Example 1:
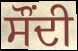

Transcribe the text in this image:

ਸੌਂਦੀ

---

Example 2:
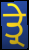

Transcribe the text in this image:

ਤ੍ਰੇ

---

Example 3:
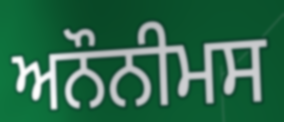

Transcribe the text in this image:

ਅਨੌਨੀਮਸ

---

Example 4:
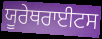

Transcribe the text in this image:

ਯੂਰੇਥਰਾਈਟਸ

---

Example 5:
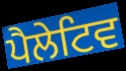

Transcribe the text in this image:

ਪੈਲੇਟਿਵ